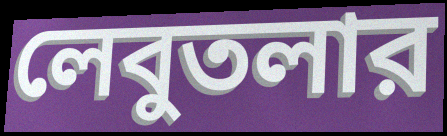
লেবুতলার